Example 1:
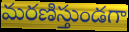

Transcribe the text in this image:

మరణిస్తుండగా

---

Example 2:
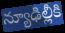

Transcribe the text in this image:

న్యూఢిల్లీకి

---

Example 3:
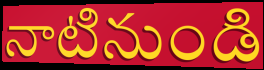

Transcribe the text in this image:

నాటినుండి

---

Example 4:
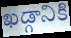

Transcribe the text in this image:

ఖడ్గానికి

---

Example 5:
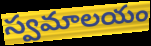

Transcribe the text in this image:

స్వమాలయం